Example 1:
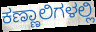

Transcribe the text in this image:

ಕಣ್ಣಾಲಿಗಳಲ್ಲಿ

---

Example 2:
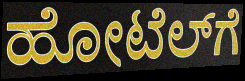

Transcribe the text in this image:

ಹೋಟೆಲ್‌ಗೆ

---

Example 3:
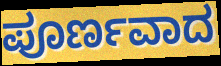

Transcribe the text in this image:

ಪೂರ್ಣವಾದ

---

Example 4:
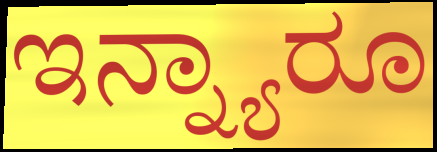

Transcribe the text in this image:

ಇನ್ನ್ಯಾರೂ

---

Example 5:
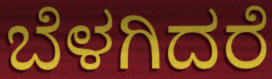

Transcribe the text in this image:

ಬೆಳಗಿದರೆ